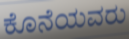
ಕೊನೆಯವರು